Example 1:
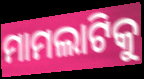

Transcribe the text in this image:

ମାମଲାଟିକୁ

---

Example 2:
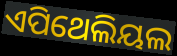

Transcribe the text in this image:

ଏପିଥେଲିୟଲ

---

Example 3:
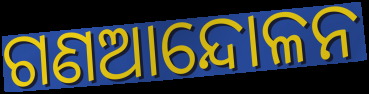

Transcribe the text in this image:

ଗଣଆନ୍ଦୋଳନ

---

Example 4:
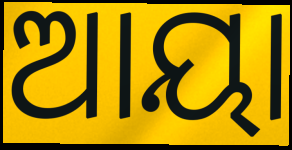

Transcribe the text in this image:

ଆୟା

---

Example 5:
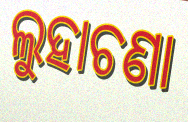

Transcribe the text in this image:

ଲୁହାଚଣା